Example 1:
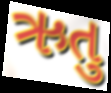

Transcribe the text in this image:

ઋતુ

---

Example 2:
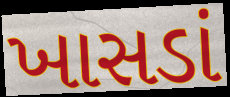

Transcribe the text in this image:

ખાસડાં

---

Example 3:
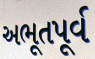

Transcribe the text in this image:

અભૂતપૂર્વ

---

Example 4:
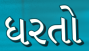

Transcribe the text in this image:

ધરતો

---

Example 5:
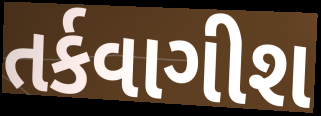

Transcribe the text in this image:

તર્કવાગીશ